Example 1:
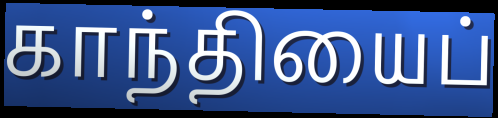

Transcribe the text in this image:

காந்தியைப்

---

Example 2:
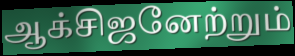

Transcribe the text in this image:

ஆக்சிஜனேற்றும்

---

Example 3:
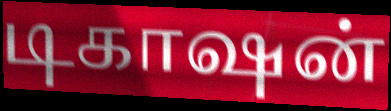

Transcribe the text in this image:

டிகாஷன்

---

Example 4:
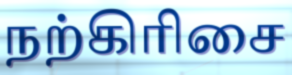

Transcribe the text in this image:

நற்கிரிசை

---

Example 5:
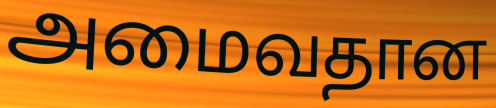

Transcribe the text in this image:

அமைவதான